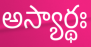
అస్యార్థః